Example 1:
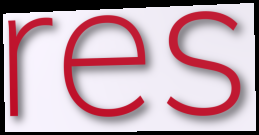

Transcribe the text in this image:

res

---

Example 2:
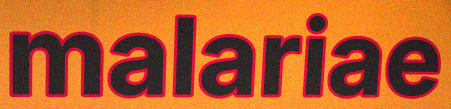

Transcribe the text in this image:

malariae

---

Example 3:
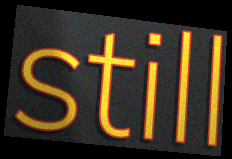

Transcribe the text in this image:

still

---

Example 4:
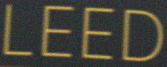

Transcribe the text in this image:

LEED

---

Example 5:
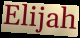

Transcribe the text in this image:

Elijah